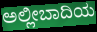
ಅಲ್ಲೀಬಾದಿಯ